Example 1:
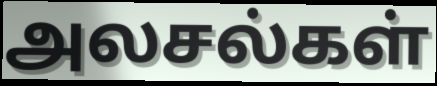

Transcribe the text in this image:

அலசல்கள்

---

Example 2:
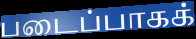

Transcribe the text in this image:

படைப்பாகக்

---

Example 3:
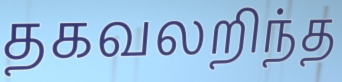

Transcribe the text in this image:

தகவலறிந்த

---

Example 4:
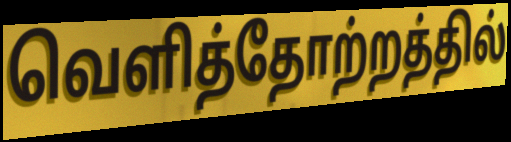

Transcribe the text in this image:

வெளித்தோற்றத்தில்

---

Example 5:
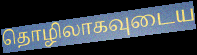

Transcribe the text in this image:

தொழிலாகவுடைய